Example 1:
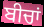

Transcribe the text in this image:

ਬੀਚਾਂ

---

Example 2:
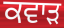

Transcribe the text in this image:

ਕਵਾੜ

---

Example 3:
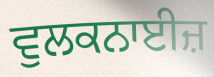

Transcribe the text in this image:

ਵੁਲਕਨਾਈਜ਼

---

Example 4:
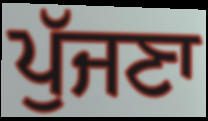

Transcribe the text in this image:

ਪੁੱਜਣਾ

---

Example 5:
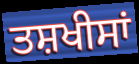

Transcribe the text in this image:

ਤਸ਼ਖੀਸਾਂ